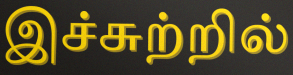
இச்சுற்றில்